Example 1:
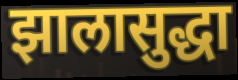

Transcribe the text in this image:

झालासुद्धा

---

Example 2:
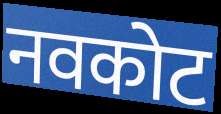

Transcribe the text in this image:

नवकोट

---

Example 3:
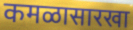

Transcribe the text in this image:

कमळासारखा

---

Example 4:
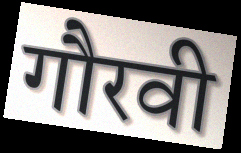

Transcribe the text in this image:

गौरवी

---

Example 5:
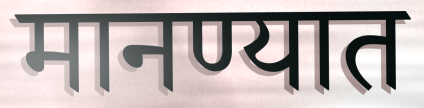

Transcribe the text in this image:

मानण्यात